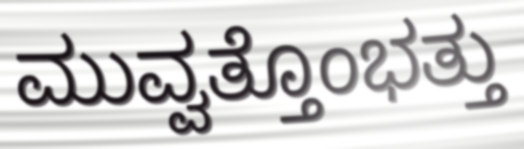
ಮುವ್ವತ್ತೊಂಭತ್ತು